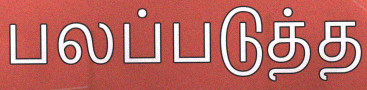
பலப்படுத்த